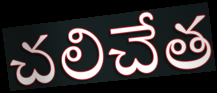
చలిచేత